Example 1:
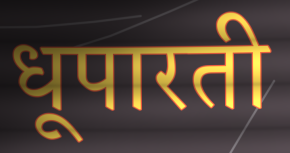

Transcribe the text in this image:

धूपारती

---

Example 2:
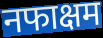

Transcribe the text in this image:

नफाक्षम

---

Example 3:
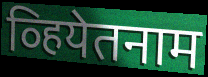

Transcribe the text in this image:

व्हियेतनाम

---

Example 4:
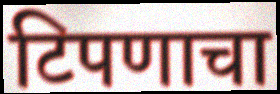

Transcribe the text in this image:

टिपणाचा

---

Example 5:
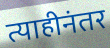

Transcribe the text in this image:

त्याहीनंतर